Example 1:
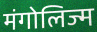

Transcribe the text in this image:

मंगोलिज्म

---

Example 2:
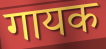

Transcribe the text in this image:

गायक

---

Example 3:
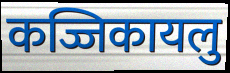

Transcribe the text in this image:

कज्जिकायलु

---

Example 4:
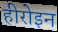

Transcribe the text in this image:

हीरोइन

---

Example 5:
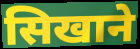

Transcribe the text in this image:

सिखाने